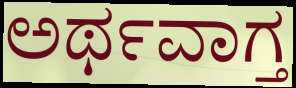
ಅರ್ಥವಾಗ್ತ